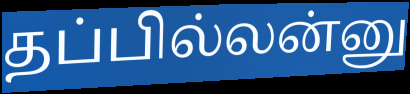
தப்பில்லன்னு